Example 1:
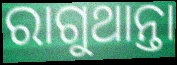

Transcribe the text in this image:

ରାଗୁଥାନ୍ତା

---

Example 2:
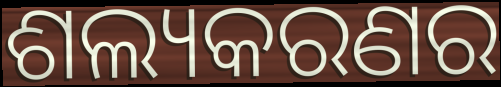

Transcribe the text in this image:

ଶଲ୍ୟକରଣର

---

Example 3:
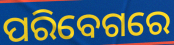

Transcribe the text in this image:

ପରିବେଗରେ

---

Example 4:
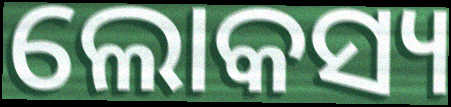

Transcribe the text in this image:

ଲୋକସ୍ୟ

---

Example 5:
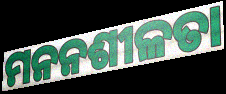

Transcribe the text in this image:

ମନନଶୀଳତା